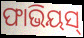
ଫାଭିୟସ୍